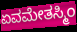
ಏವಮೇತಸ್ಮಿಂ